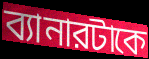
ব্যানারটাকে